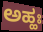
ಅಹ್ಹಃ